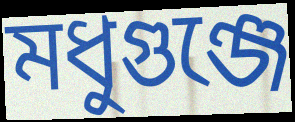
মধুগুঞ্জে